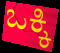
ಒಕ್ಕಿ